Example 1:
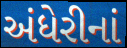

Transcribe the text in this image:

અંધેરીનાં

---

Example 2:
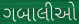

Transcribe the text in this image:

ગબાલીઓ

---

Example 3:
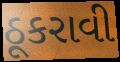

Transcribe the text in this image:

ઠૂકરાવી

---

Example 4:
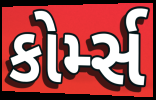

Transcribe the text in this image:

કોર્મ્સ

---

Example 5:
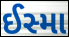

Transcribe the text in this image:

ઈસ્મા